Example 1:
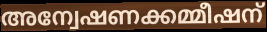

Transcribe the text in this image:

അന്വേഷണക്കമ്മീഷന്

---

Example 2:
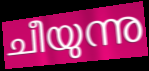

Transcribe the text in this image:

ചീയുന്നു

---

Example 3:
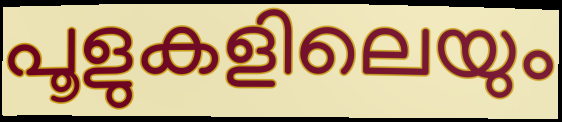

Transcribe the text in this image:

പൂളുകളിലെയും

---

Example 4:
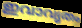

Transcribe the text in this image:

ഇവാവൃതം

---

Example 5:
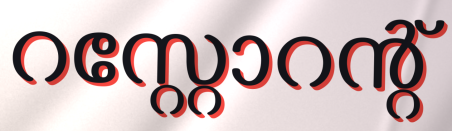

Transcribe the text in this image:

റസ്റ്റോറന്റ്